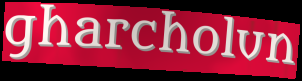
gharcholun